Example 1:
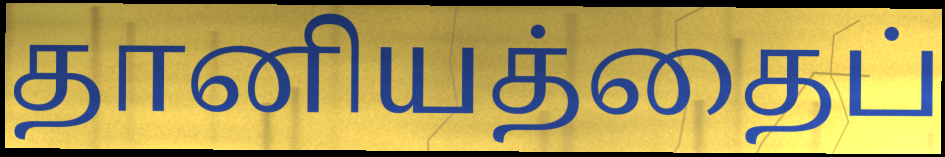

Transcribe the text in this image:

தானியத்தைப்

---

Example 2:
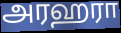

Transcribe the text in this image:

அரஹரா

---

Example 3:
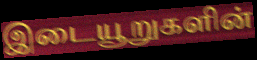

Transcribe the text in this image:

இடையூறுகளின்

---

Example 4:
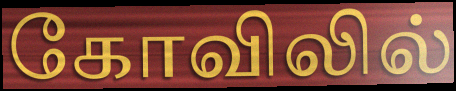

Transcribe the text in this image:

கோவிலில்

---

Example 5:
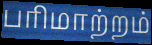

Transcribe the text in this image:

பரிமாற்றம்